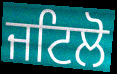
ਜਟਿਲੋ